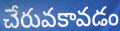
చేరువకావడం